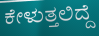
ಕೇಳುತ್ತಲಿದ್ದೆ